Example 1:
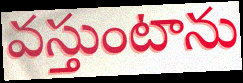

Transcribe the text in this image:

వస్తుంటాను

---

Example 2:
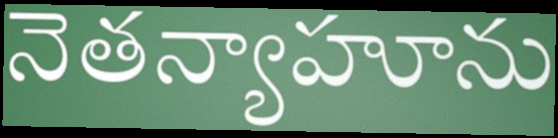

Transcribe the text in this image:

నెతన్యాహూను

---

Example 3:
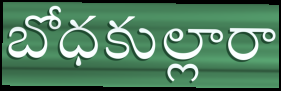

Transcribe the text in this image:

బోధకుల్లారా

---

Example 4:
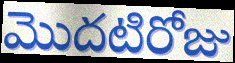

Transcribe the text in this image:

మొదటిరోజు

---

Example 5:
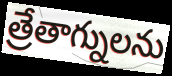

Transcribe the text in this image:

త్రేతాగ్నులను